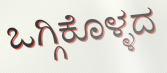
ಒಗ್ಗಿಕೊಳ್ಳದ